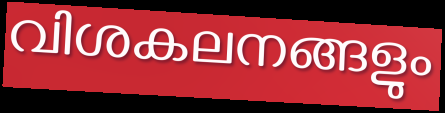
വിശകലനങ്ങളും